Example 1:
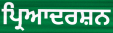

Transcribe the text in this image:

ਪ੍ਰਿਆਦਰਸ਼ਨ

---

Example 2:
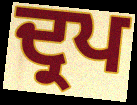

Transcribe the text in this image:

ਦ੍ਰਪ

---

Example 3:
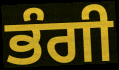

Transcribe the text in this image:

ਭੰਗੀ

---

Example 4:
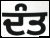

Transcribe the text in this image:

ਦੰਤ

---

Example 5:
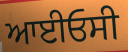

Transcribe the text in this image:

ਆਈਓਸੀ